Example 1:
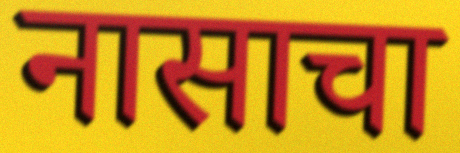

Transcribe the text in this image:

नासाचा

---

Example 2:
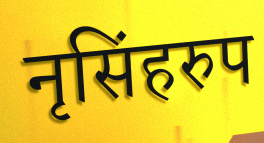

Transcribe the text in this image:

नृसिंहरुप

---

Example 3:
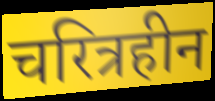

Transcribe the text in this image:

चरित्रहीन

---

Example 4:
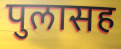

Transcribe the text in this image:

पुलासह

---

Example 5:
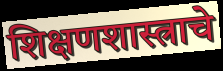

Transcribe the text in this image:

शिक्षणशास्त्राचे